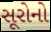
સૂરોનો